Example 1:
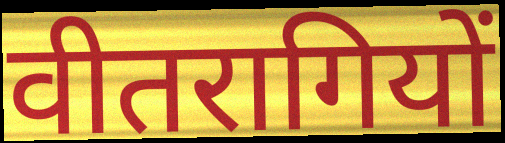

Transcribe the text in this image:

वीतरागियों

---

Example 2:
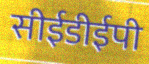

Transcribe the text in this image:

सीईडीईपी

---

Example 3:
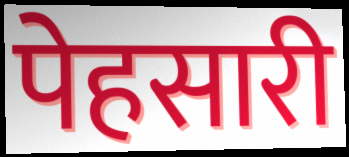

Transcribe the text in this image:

पेहसारी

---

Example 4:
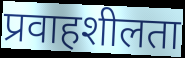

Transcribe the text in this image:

प्रवाहशीलता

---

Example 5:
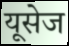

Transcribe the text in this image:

यूसेज